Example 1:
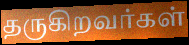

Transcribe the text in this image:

தருகிறவர்கள்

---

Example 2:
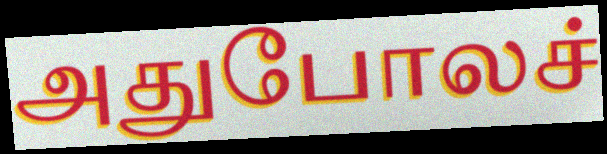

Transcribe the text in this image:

அதுபோலச்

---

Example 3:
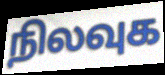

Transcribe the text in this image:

நிலவுக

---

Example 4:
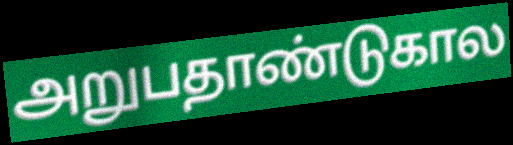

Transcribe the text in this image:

அறுபதாண்டுகால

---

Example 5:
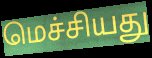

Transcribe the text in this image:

மெச்சியது